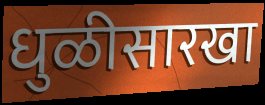
धुळीसारखा